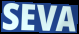
SEVA